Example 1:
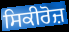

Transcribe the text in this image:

ਸਿਕੀਰੋਜ਼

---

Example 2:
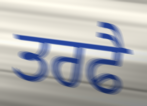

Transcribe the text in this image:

ਤਰਫੈ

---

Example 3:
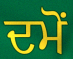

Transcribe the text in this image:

ਦਮੋਂ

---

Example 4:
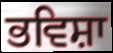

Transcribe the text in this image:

ਭਵਿਸ਼ਾ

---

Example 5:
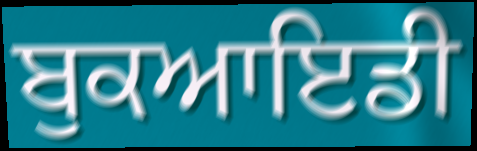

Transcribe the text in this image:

ਬੁਕਆਇਡੀ